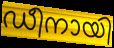
ഡീനായി